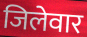
जिलेवार